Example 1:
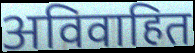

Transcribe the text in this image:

अविवाहित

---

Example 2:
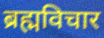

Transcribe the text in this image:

ब्रह्मविचार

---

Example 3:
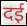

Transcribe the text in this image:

दई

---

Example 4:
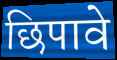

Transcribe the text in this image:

छिपावे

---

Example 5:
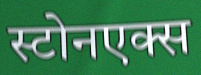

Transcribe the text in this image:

स्टोनएक्स